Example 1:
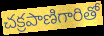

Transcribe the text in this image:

చక్రపాణిగారితో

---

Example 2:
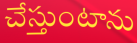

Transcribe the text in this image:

చేస్తుంటాను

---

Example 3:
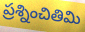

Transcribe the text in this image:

ప్రశ్నించితిమి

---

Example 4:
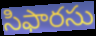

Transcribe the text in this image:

సిఫారసు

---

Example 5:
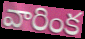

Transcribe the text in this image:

వారింక